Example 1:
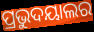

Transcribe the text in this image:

ପ୍ରଭୁଦୟାଲର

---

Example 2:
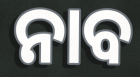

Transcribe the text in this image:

ନାବ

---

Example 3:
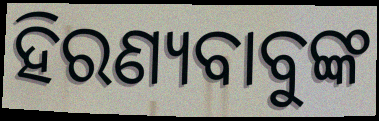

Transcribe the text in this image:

ହିରଣ୍ୟବାବୁଙ୍କ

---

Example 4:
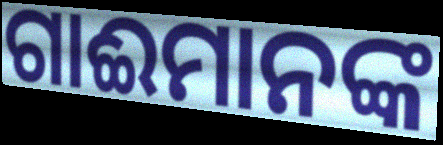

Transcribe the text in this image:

ଗାଈମାନଙ୍କ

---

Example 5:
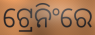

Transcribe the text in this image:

ଟ୍ରେନିଂରେ